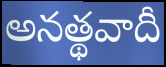
అనత్థవాదీ